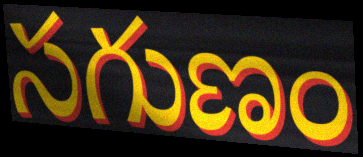
సగుణం